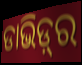
ଡାଭିଡ଼୍‍ର